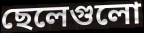
ছেলেগুলো